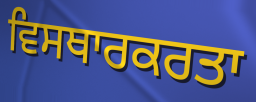
ਵਿਸਥਾਰਕਰਤਾ